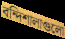
বন্দিশালাগুলো